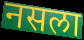
नसला